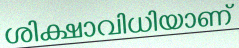
ശിക്ഷാവിധിയാണ്